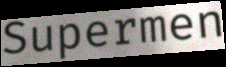
Supermen